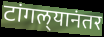
टांगल्यानंतर